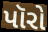
પૉરો